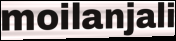
moilanjali